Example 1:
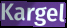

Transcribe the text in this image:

Kargel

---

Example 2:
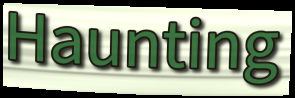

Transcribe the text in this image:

Haunting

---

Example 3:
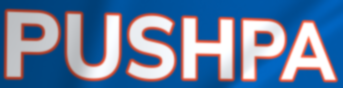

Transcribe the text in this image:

PUSHPA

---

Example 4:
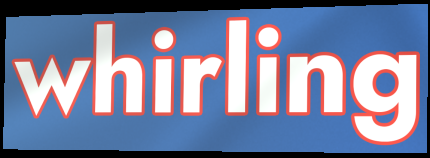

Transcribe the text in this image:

whirling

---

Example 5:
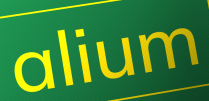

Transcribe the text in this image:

alium